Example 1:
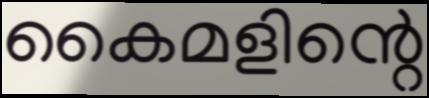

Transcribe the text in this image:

കൈമളിന്റെ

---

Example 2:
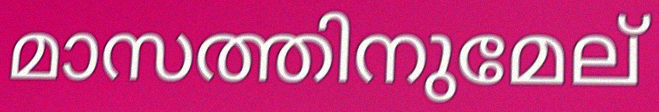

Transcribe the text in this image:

മാസത്തിനുമേല്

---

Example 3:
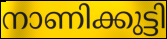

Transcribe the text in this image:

നാണിക്കുട്ടി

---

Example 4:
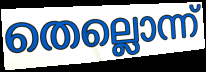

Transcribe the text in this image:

തെല്ലൊന്ന്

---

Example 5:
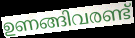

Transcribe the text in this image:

ഉണങ്ങിവരണ്ട്